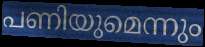
പണിയുമെന്നും